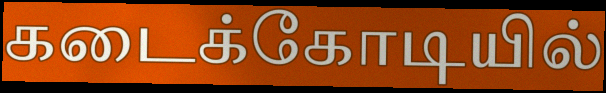
கடைக்கோடியில்